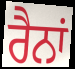
ਰੈਨਾਂ